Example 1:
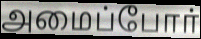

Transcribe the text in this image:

அமைப்போர்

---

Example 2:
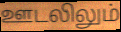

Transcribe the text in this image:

ஊடலிலும்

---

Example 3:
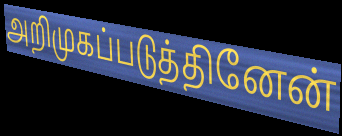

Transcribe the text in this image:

அறிமுகப்படுத்தினேன்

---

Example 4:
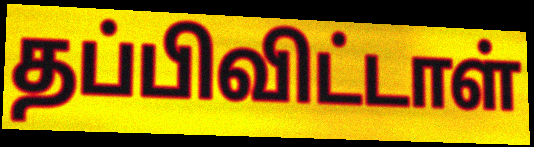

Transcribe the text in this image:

தப்பிவிட்டாள்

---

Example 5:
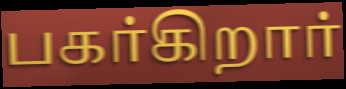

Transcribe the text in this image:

பகர்கிறார்